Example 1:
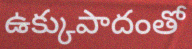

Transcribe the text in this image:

ఉక్కుపాదంతో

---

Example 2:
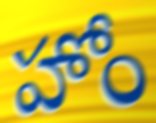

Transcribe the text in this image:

హోం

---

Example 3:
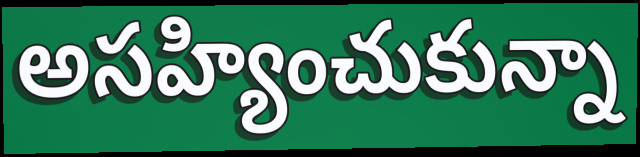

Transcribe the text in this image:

అసహ్యించుకున్నా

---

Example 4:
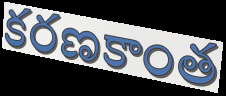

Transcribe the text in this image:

కరణకాంత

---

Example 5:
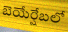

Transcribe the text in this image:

బెయేర్షేబలో